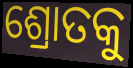
ଶ୍ରୋତକୁ